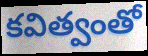
కవిత్వంతో